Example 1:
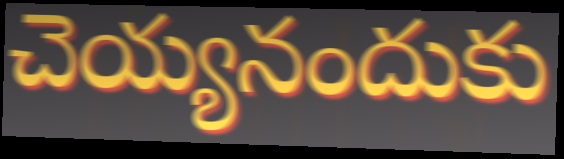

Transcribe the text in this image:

చెయ్యనందుకు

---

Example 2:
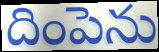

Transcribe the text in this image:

దింపెను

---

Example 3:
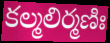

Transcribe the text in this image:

కల్మలిర్మణిః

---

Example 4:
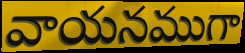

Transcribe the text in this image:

వాయనముగా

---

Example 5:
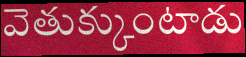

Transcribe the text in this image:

వెతుక్కుంటాడు